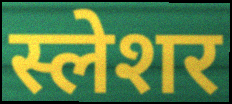
स्लेशर